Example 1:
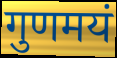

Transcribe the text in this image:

गुणमयं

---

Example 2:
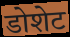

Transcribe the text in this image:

डोशेट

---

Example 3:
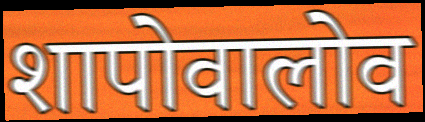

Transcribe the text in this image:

शापोवालोव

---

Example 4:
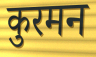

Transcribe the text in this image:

कुरमन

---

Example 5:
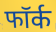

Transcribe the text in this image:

फॉर्क